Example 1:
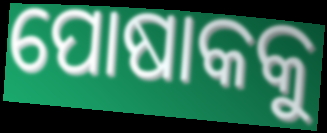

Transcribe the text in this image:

ପୋଷାକକୁ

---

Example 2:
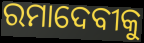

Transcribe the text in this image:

ରମାଦେବୀକୁ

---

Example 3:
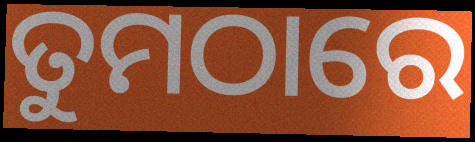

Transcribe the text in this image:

ତୁମଠାରେ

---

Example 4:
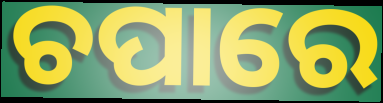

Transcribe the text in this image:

ଚପାରେ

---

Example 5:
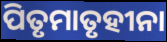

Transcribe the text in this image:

ପିତୃମାତୃହୀନା